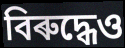
বিৰুদ্ধেও